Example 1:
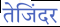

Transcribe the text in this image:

तेजिंदर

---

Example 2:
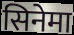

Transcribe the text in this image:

सिनेमा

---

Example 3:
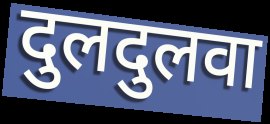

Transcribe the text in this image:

दुलदुलवा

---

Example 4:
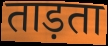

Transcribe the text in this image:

ताड़ता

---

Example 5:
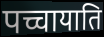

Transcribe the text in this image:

पच्चायाति